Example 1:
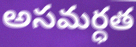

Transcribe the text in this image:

అసమర్ధత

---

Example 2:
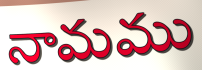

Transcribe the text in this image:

నామము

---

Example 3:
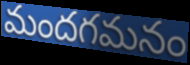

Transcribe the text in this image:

మందగమనం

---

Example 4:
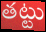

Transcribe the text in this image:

తట్టు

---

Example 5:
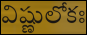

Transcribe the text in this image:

విష్ణులోకః